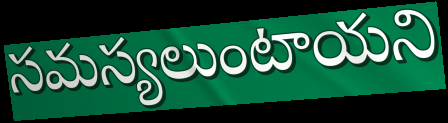
సమస్యలుంటాయని